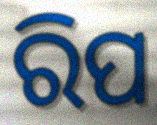
ରିପ